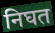
निघत